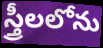
స్త్రీలలోను